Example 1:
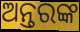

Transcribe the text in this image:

ଅନ୍ତରଙ୍କ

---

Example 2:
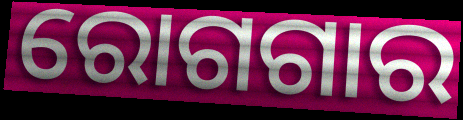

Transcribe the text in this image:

ରୋଗଗାର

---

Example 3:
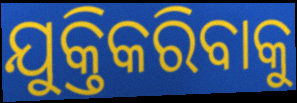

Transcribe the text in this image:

ଯୁକ୍ତିକରିବାକୁ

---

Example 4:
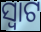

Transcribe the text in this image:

ସ୍ୱାଟ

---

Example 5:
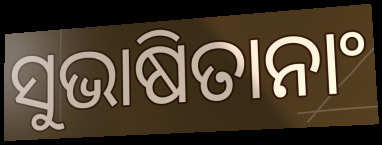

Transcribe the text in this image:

ସୁଭାଷିତାନାଂ